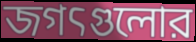
জগৎগুলোর